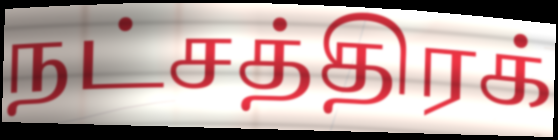
நட்சத்திரக்